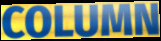
COLUMN